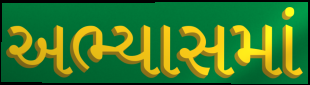
અભ્યાસમાં